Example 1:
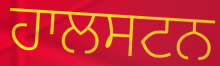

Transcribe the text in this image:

ਹਾਲਸਟਨ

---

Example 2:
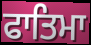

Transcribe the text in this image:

ਫਾਤਿਮਾ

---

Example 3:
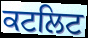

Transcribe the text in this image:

ਕਟਲਿਟ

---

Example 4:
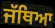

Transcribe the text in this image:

ਜੱਥਿਆ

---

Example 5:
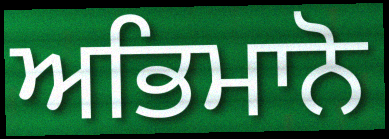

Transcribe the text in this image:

ਅਭਿਮਾਨੋ